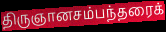
திருஞானசம்பந்தரைக்